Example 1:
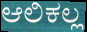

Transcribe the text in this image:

ಆಲಿಕಲ್ಲ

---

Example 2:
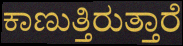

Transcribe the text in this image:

ಕಾಣುತ್ತಿರುತ್ತಾರೆ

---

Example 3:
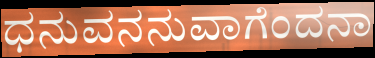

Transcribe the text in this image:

ಧನುವನನುವಾಗೆಂದನಾ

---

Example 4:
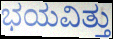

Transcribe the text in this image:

ಭಯವಿತ್ತು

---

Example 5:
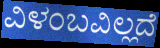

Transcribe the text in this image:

ವಿಳಂಬವಿಲ್ಲದೆ